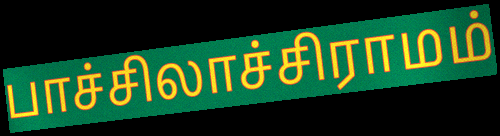
பாச்சிலாச்சிராமம்